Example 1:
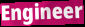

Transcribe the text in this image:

Engineer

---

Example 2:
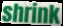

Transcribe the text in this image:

shrink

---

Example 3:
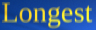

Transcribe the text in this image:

Longest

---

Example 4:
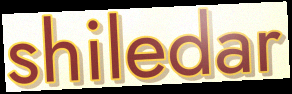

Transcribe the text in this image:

shiledar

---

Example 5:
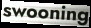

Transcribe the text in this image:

swooning